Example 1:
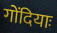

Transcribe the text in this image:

गोंदियाः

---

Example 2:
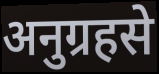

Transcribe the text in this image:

अनुग्रहसे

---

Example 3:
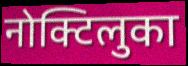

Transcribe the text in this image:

नोक्टिलुका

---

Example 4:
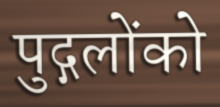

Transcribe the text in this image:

पुद्गलोंको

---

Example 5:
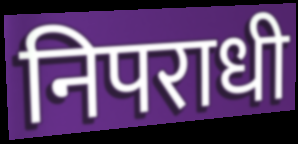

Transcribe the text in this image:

निपराधी